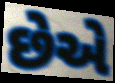
છેએ